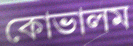
কোভালম